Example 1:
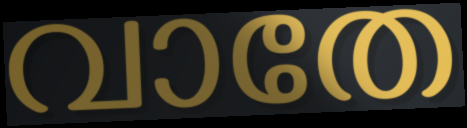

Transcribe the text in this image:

വാതേ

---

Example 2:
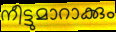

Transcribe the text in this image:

നീട്ടുമാറാക്കും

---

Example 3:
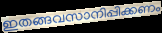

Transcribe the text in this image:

ഇതങ്ങവസാനിപ്പിക്കണം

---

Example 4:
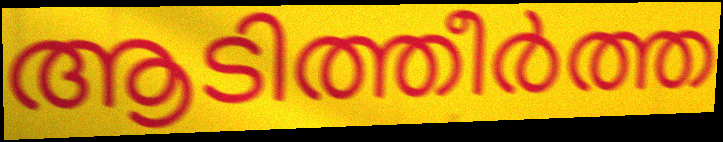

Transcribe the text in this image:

ആടിത്തീർത്ത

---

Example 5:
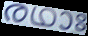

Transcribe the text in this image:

രഥാഃ